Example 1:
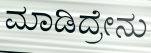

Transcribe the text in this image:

ಮಾಡಿದ್ರೇನು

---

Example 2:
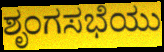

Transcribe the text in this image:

ಶೃಂಗಸಭೆಯು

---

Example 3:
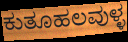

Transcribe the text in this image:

ಕುತೂಹಲವುಳ್ಳ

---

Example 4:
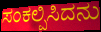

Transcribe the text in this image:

ಸಂಕಲ್ಪಿಸಿದನು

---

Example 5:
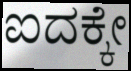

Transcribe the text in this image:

ಐದಕ್ಕೇ